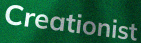
Creationist